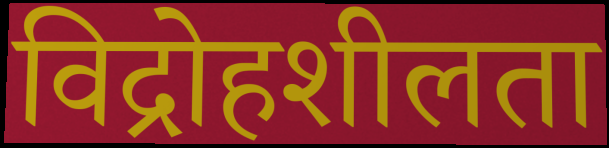
विद्रोहशीलता